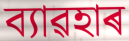
ব্যাৱহাৰ